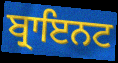
ਬ੍ਰਾਇਨਟ